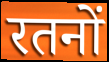
रतनों